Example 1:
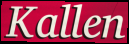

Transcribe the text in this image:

Kallen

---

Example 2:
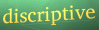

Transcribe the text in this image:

discriptive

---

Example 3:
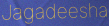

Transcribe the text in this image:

Jagadeesha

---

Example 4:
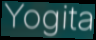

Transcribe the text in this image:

Yogita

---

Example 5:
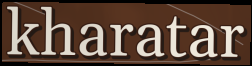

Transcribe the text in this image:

kharatar